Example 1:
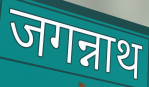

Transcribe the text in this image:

जगन्नाथ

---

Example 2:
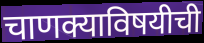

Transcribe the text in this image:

चाणक्याविषयीची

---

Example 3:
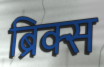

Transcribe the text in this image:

ब्रिक्स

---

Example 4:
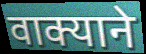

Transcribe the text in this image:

वाक्याने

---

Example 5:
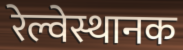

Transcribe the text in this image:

रेल्वेस्थानक